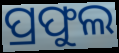
ପ୍ରଫୁଲ